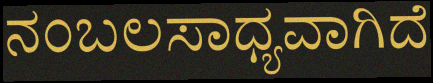
ನಂಬಲಸಾಧ್ಯವಾಗಿದೆ